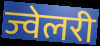
ज्वेलरी